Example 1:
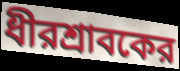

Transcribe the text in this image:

ধীরশ্রাবকের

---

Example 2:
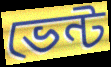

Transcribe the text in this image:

ভেন্ট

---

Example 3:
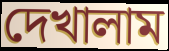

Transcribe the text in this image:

দেখালাম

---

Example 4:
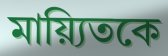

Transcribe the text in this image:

মায়্যিতকে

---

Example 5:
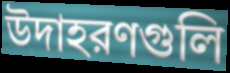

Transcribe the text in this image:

উদাহরণগুলি